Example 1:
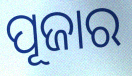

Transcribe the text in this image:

ପୂଜାର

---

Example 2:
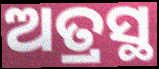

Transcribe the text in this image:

ଅତ୍ରସ୍ଥ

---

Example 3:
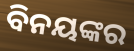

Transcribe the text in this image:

ବିନୟଙ୍କର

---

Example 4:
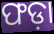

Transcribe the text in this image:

ଫଡ଼ା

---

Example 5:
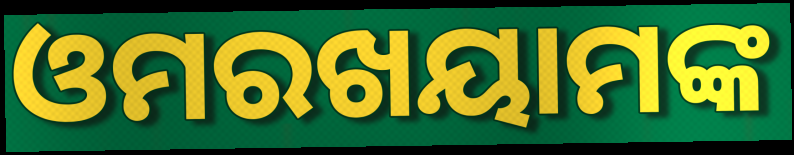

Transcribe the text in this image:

ଓମରଖୟାମଙ୍କ